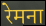
रेमना